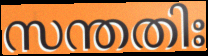
സന്തതിഃ